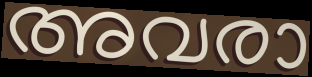
അവരാ